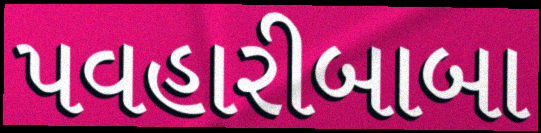
પવહારીબાબા